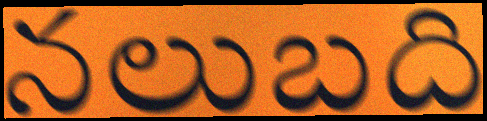
నలుబది